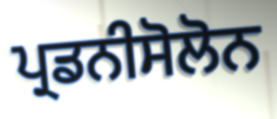
ਪ੍ਰਡਨੀਸੋਲੋਨ